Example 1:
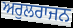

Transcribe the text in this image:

ਅਰੁਲਰਾਜਨ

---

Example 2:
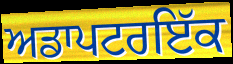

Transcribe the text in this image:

ਅਡਾਪਟਰਇੱਕ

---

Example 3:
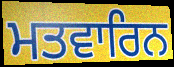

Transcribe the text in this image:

ਮਤਵਾਰਿਨ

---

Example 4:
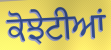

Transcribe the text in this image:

ਕੋਝੇਟੀਆਂ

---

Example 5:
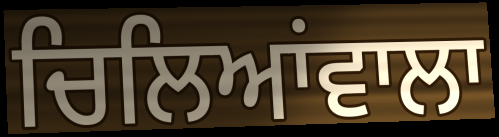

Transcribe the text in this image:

ਚਿਲਿਆਂਵਾਲਾ